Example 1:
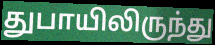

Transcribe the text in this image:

துபாயிலிருந்து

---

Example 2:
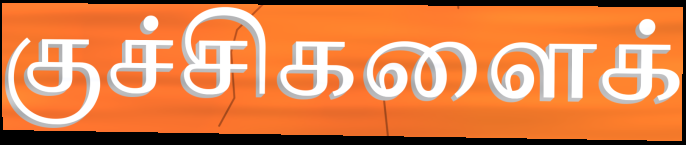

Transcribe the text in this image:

குச்சிகளைக்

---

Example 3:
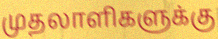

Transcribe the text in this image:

முதலாளிகளுக்கு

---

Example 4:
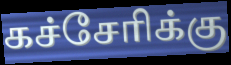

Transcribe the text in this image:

கச்சேரிக்கு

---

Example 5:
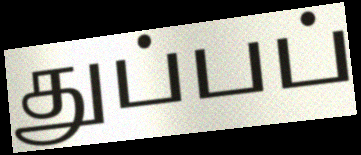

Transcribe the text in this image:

துப்பப்